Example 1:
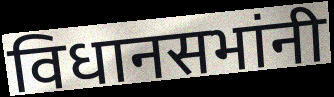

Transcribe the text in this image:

विधानसभांनी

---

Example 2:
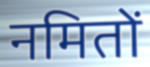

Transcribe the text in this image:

नमितों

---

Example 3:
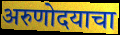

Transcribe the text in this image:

अरुणोदयाचा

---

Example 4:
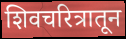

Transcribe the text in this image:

शिवचरित्रातून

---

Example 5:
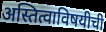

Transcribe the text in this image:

अस्तित्वाविषयीची